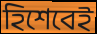
হিশেবেই